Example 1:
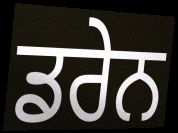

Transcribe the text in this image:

ਡਰੇਨ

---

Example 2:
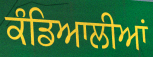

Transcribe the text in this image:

ਕੰਡਿਆਲੀਆਂ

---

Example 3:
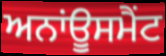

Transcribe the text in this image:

ਅਨਾਂਊਸਮੈਂਟ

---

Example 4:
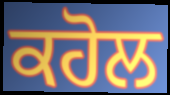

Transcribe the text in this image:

ਕਹੋਲ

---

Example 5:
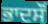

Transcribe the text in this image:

ਭਾਦਸੌਂ